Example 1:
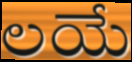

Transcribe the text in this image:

లయే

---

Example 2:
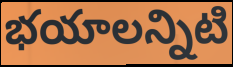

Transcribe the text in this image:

భయాలన్నిటి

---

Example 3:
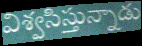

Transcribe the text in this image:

విశ్వసిస్తున్నాడు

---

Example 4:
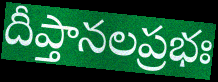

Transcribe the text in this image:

దీప్తానలప్రభః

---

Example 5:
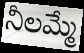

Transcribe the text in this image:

నీలమ్మే